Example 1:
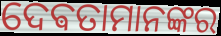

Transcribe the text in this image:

ଦେଵତାମାନଙ୍କର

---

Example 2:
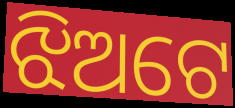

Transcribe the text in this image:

ଝିଅଟେ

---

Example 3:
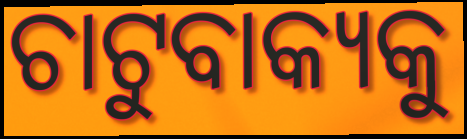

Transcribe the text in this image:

ଚାଟୁବାକ୍ୟକୁ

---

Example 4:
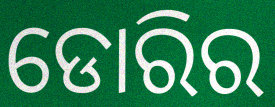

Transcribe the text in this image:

ଡୋରିର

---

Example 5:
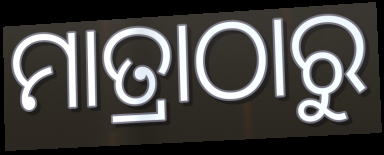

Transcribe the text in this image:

ମାତ୍ରାଠାରୁ